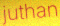
juthan